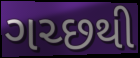
ગચ્છથી